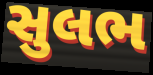
સુલભ